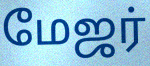
மேஜர்